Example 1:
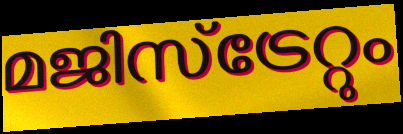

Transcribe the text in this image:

മജിസ്ട്രേറ്റും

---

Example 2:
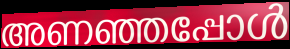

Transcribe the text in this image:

അണഞ്ഞപ്പോൾ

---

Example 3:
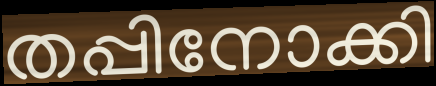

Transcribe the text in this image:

തപ്പിനോക്കി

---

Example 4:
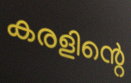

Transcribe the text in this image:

കരളിന്റെ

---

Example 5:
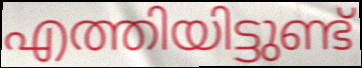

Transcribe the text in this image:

എത്തിയിട്ടുണ്ട്